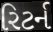
રિટર્ન